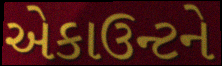
એકાઉન્ટને